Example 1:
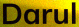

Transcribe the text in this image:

Darul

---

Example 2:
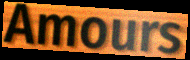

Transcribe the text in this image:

Amours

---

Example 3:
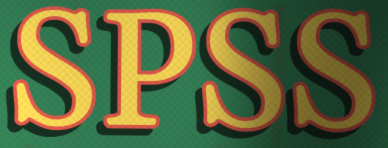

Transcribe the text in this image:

SPSS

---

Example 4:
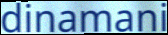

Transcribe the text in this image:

dinamani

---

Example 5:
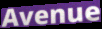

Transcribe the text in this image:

Avenue